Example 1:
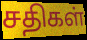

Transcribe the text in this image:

சதிகள்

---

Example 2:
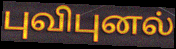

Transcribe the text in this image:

புவிபுனல்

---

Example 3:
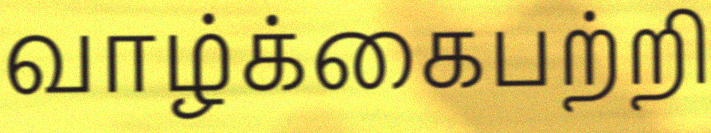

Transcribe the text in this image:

வாழ்க்கைபற்றி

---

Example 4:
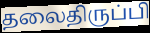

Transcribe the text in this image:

தலைதிருப்பி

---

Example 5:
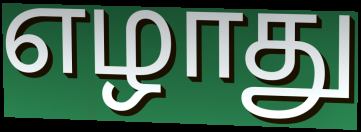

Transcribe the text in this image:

எழாது